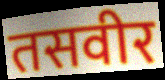
तसवीर